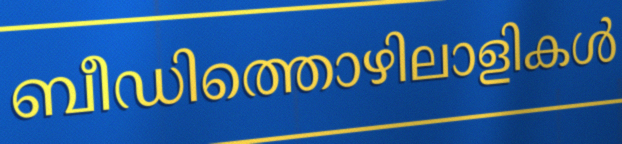
ബീഡിത്തൊഴിലാളികൾ